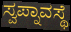
ಸ್ವಪ್ನಾವಸ್ಥೆ